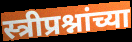
स्त्रीप्रश्नांच्या